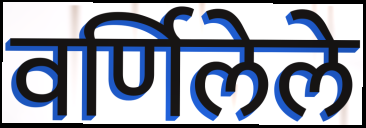
वर्णिलेले